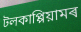
টলকাপ্পিয়ামৰ